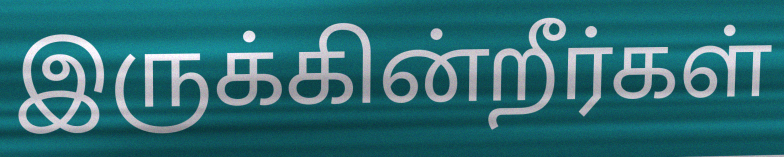
இருக்கின்றீர்கள்